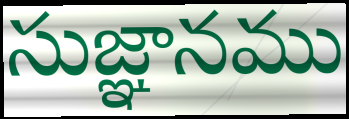
సుజ్ఞానము